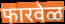
फारवेळ